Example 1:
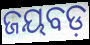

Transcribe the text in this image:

ଜୟବଡ଼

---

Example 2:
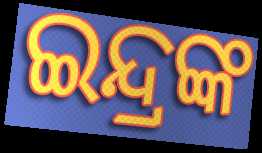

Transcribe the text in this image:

ଇନ୍ଦ୍ରଙ୍କ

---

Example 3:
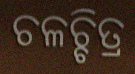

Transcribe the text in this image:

ଚଳଚ୍ଚିତ୍ର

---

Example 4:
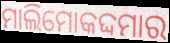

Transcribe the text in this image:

ମାଲିମୋକଦ୍ଦମାର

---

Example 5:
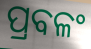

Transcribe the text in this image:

ପ୍ରବଳଂ